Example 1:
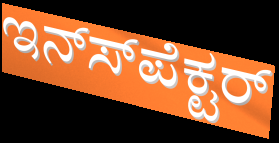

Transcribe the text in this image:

ಇನ್ಸ್‍ಪೆಕ್ಟರ್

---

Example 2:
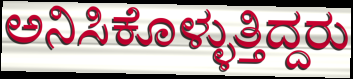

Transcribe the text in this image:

ಅನಿಸಿಕೊಳ್ಳುತ್ತಿದ್ದರು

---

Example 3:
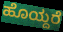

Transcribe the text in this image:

ಹೊಯ್ದರೆ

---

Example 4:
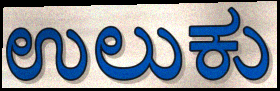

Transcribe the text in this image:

ಉಲುಕು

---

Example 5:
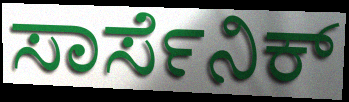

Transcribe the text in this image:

ಸಾರ್ಸೆನಿಕ್